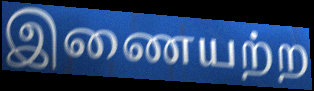
இணையற்ற